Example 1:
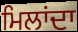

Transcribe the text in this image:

ਮਿਲਾਂਦਾ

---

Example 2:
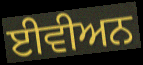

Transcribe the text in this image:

ਈਵੀਅਨ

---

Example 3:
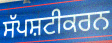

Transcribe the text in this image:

ਸੱਪਸ਼ਟੀਕਰਨ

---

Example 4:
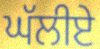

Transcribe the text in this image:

ਘੱਲੀਏ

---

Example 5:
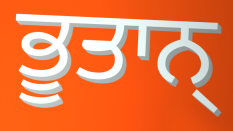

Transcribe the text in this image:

ਭੂਤਾਨ੍